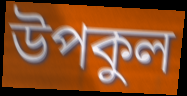
উপকুল